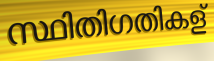
സ്ഥിതിഗതികള്